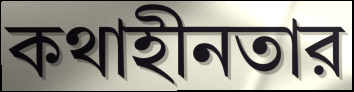
কথাহীনতার